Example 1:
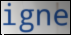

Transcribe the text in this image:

igne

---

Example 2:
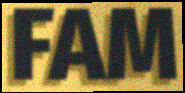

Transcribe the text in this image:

FAM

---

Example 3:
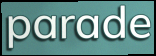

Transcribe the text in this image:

parade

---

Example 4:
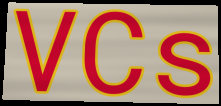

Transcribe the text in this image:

VCs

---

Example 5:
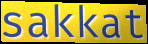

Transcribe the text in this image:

sakkat